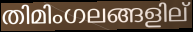
തിമിംഗലങ്ങളില്